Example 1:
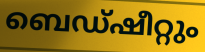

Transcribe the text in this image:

ബെഡ്ഷീറ്റും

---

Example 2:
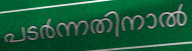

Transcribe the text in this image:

പടർന്നതിനാൽ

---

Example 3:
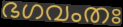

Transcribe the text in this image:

ഭഗവംതഃ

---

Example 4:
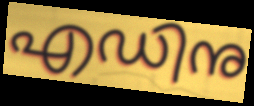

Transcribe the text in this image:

എഡിനു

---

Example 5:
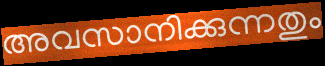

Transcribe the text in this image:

അവസാനിക്കുന്നതും